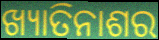
ଖ୍ୟାତିନାଶର